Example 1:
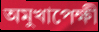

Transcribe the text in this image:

অমুখাপেক্ষী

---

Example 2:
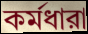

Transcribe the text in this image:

কর্মধারা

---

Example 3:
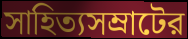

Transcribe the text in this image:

সাহিত্যসম্রাটের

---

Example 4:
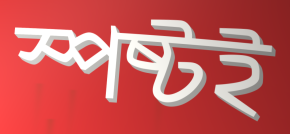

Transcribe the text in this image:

স্পষ্টই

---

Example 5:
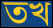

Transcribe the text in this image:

তখ